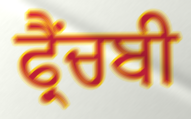
ਫ੍ਰੈਂਚਬੀ